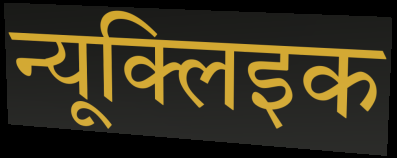
न्यूक्‍लिइक